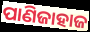
ପାଣିଜାହାଜ